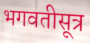
भगवतीसूत्र